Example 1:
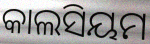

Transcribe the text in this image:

କାଲସିୟମ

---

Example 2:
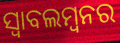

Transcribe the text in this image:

ସ୍ବାବଲମ୍ବନର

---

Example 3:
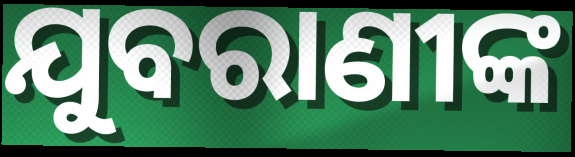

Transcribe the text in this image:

ଯୁବରାଣୀଙ୍କ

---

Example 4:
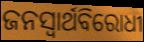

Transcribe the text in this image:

ଜନସ୍ଵାର୍ଥବିରୋଧୀ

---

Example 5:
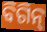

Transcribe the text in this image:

ବିଗିନ୍